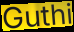
Guthi